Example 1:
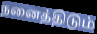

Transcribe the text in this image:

நனைத்திடும்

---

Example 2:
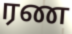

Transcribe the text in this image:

ரண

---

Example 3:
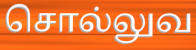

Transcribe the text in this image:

சொல்லுவ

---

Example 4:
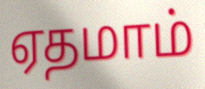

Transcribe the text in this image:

ஏதமாம்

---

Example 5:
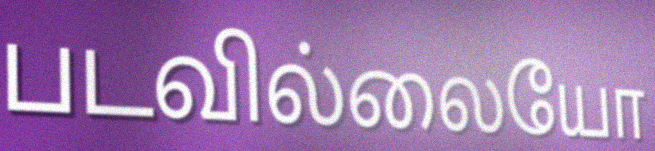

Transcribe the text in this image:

படவில்லையோ